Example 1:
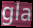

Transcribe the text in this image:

gla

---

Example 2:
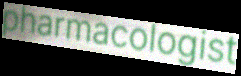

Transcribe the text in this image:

pharmacologist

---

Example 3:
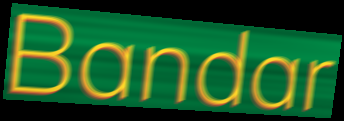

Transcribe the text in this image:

Bandar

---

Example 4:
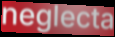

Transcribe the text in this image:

neglecta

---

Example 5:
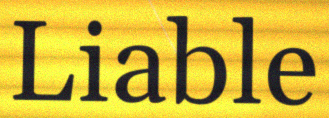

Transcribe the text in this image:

Liable